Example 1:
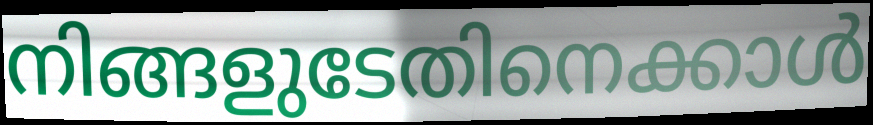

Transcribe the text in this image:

നിങ്ങളുടേതിനെക്കാൾ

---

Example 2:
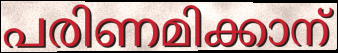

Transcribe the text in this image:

പരിണമിക്കാന്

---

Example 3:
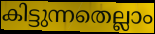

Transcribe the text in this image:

കിട്ടുന്നതെല്ലാം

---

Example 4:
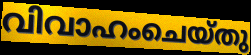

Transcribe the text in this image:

വിവാഹംചെയ്തു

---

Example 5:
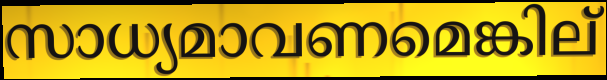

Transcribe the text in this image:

സാധ്യമാവണമെങ്കില്